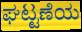
ಘಟ್ಟಣೆಯ